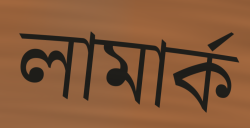
লামার্ক